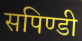
सपिण्डी